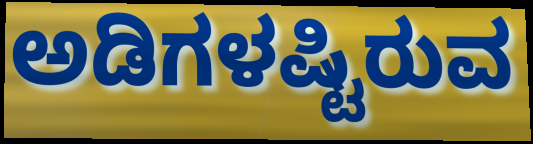
ಅಡಿಗಳಷ್ಟಿರುವ